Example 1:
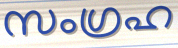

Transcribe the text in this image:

സംഗ്രഹ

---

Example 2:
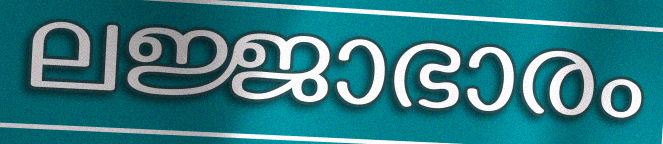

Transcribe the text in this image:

ലജ്ജാഭാരം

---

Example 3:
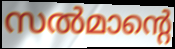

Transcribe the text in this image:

സൽമാന്റെ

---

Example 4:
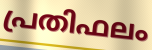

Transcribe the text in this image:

പ്രതിഫലം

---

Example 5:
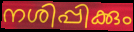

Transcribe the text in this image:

നശിപ്പിക്കും